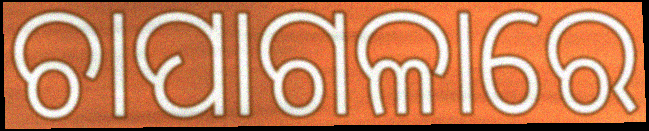
ଚାପାଗଳାରେ